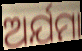
ଅର୍ଯମା